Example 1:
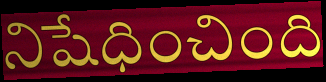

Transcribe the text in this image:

నిషేధించింది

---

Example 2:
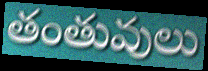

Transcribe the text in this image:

తంతువులు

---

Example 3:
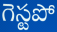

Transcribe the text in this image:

గెస్టపో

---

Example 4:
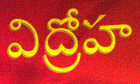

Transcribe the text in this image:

విద్రోహ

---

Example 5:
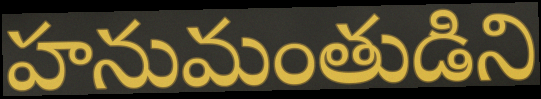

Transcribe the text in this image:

హనుమంతుడిని